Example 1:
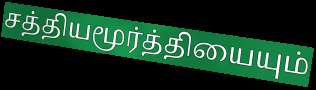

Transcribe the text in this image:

சத்தியமூர்த்தியையும்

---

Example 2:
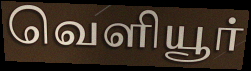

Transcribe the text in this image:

வெளியூர்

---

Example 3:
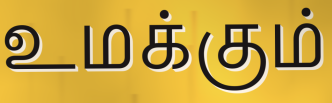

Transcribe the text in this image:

உமக்கும்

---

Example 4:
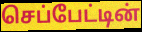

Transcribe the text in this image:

செப்பேட்டின்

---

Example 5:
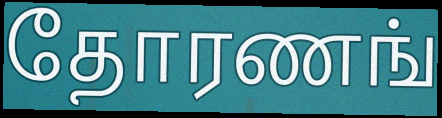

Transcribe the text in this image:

தோரணங்